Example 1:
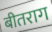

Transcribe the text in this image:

बीतराग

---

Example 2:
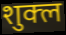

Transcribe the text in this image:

शुक्‍ल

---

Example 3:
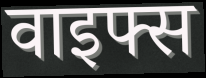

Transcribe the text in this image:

वाइफ्स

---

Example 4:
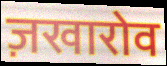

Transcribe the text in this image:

ज़खारोव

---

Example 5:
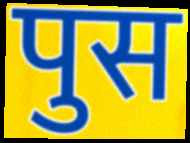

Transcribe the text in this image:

पुस